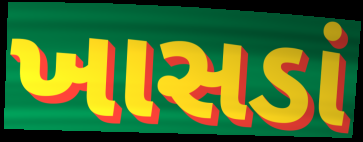
ખાસડાં